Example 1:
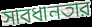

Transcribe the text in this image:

সাবধানতার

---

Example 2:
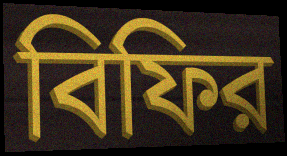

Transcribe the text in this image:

বিফির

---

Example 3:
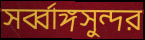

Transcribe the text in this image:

সর্ব্বাঙ্গসুন্দর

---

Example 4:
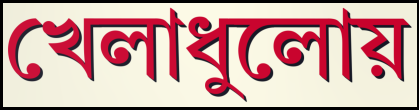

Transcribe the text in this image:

খেলাধুলোয়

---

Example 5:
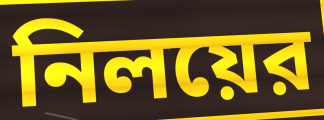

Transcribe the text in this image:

নিলয়ের